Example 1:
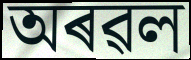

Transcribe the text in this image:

অৰৱল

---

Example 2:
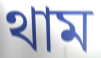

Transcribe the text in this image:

থাম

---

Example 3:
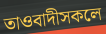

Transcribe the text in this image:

তাওবাদীসকলে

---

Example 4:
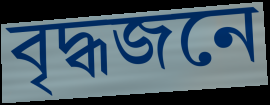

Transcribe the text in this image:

বৃদ্ধজনে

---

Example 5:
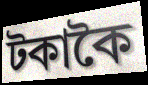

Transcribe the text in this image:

টকাকৈ